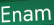
Enam